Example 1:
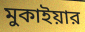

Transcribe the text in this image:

মুকাইয়ার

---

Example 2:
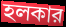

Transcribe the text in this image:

হলকার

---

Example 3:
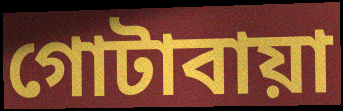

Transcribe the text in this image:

গোটাবায়া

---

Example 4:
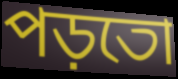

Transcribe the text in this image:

পড়তো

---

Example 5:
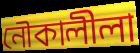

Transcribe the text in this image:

নৌকালীলা